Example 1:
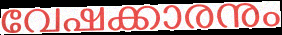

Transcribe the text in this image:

വേഷക്കാരനും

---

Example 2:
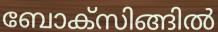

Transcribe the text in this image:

ബോക്സിങ്ങിൽ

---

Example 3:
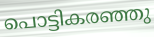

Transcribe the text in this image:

പൊട്ടികരഞ്ഞു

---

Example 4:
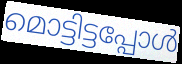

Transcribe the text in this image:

മൊട്ടിട്ടപ്പോൾ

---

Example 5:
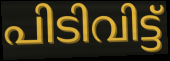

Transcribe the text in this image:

പിടിവിട്ട്